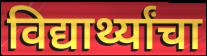
विद्यार्थ्यांचा